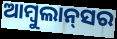
ଆମ୍ବୁଲାନ୍‌ସର